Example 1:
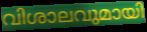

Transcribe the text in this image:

വിശാലവുമായി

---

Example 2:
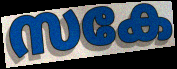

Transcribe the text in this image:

സകേ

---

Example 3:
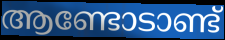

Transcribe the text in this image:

ആണ്ടോടാണ്ട്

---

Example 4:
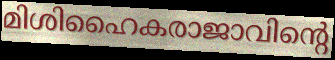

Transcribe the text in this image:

മിശിഹൈകരാജാവിന്റെ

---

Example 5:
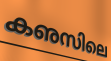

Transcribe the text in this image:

കഌസിലെ